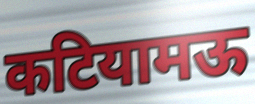
कटियामऊ